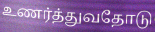
உணர்த்துவதோடு